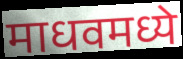
माधवमध्ये